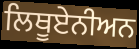
ਲਿਥੂਏਨੀਅਨ